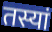
तस्यां